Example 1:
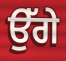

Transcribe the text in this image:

ਉੱਗੇ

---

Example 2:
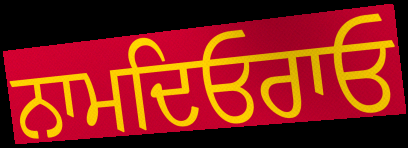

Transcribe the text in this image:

ਨਾਮਦਿਓਰਾਓ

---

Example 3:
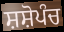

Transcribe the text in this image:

ਸ਼ਸ਼ੋਪੰਚ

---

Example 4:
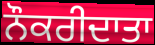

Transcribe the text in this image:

ਨੌਕਰੀਦਾਤਾ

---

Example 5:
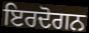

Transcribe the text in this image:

ਇਰਦੋਗਨ